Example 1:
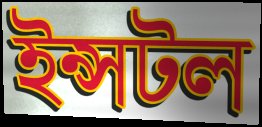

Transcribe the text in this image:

ইন্সটল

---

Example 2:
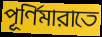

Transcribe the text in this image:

পূর্ণিমারাতে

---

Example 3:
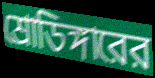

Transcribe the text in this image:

শ্রোডিঙ্গারের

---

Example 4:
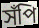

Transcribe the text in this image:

সঁপি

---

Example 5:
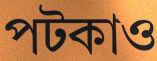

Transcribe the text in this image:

পটকাও